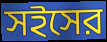
সইসের